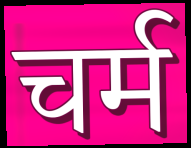
चर्म